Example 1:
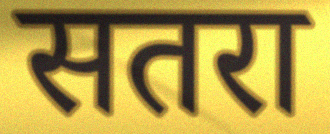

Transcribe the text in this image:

सतरा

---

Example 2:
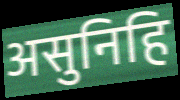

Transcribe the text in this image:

असुनिहि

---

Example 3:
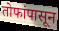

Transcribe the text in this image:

तोफांपासून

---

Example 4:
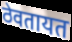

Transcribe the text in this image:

ठेवतायत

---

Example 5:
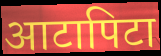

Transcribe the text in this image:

आटापिटा